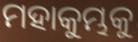
ମହାକୁମ୍ଭକୁ